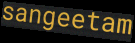
sangeetam